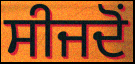
ਸੀਜਦੋਂ